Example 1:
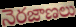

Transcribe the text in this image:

నెరజాణలు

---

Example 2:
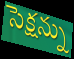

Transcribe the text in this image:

సెక్షన్ను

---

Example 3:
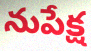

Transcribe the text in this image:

నుపేక్ష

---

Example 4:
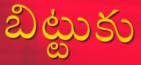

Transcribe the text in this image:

బిట్టుకు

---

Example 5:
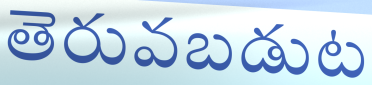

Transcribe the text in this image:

తెరువబడుట